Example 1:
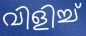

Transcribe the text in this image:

വിളിച്ച്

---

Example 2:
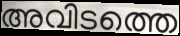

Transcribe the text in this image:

അവിടത്തെ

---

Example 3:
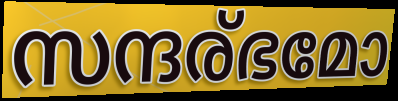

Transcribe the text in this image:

സന്ദര്ഭമോ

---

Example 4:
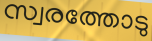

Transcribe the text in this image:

സ്വരത്തോടു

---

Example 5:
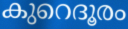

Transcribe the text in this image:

കുറെദൂരം